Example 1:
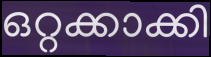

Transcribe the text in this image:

ഒറ്റക്കാക്കി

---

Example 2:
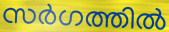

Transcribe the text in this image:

സർഗത്തിൽ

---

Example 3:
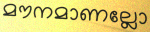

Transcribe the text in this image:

മൗനമാണല്ലോ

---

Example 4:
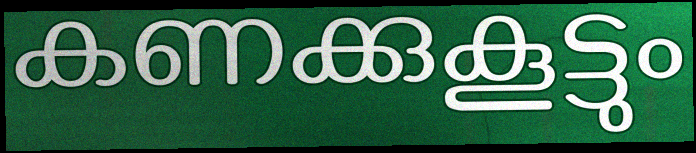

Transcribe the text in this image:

കണക്കുകൂട്ടും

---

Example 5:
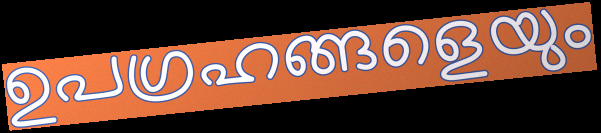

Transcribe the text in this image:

ഉപഗ്രഹങ്ങളെയും